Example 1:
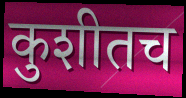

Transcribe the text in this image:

कुशीतच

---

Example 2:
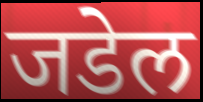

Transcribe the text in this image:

जडेल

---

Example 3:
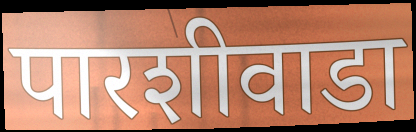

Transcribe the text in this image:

पारशीवाडा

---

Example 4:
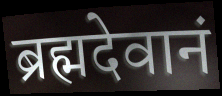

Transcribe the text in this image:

ब्रह्मदेवानं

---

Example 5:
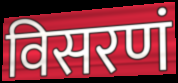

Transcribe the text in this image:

विसरणं